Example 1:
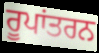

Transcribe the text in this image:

ਰੂਪਾਂਤਰਨ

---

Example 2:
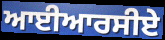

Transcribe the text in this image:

ਆਈਆਰਸੀਏ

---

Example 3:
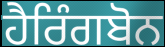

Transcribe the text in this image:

ਹੈਰਿੰਗਬੋਨ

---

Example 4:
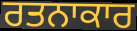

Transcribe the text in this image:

ਰਤਨਾਕਾਰ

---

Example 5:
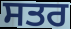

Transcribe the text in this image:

ਸਤਰ